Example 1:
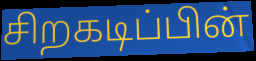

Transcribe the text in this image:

சிறகடிப்பின்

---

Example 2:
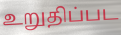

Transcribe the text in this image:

உறுதிப்பட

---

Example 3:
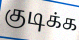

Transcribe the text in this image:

குடிக்க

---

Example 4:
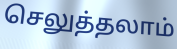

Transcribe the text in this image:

செலுத்தலாம்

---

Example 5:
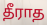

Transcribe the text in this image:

தீராத